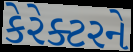
કેરેક્ટરને